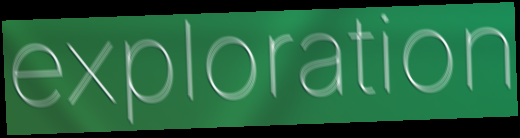
exploration